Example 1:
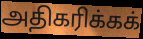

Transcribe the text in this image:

அதிகரிக்கக்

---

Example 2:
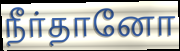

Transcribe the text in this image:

நீர்தானோ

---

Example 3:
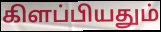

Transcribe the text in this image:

கிளப்பியதும்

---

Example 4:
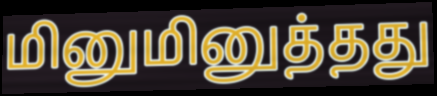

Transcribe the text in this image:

மினுமினுத்தது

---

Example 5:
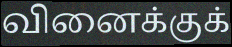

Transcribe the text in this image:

வினைக்குக்